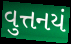
વુત્તનયં